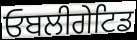
ਓਬਲੀਗੇਟਿਡ